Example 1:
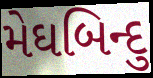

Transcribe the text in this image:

મેઘબિન્દુ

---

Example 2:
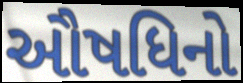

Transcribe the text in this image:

ઔષધિનો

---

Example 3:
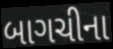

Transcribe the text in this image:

બાગચીના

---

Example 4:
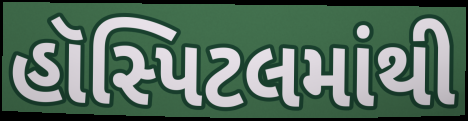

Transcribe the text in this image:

હૉસ્પિટલમાંથી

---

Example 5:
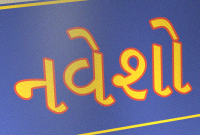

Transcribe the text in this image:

નવેશો